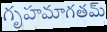
గృహమాగతమ్